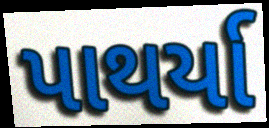
પાથર્યા